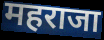
महराजा